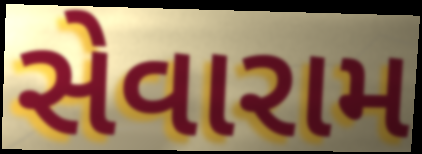
સેવારામ